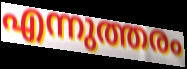
എന്നുത്തരം